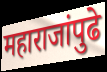
महाराजांपुढे